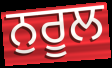
ਨੁਰੂਲ